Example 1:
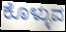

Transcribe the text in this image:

ಕೊಳ್ಳುವ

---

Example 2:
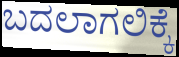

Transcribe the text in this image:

ಬದಲಾಗಲಿಕ್ಕೆ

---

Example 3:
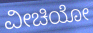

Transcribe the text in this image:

ವೀಚಿಯೋ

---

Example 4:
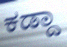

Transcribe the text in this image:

ಕಡ್ದಾ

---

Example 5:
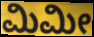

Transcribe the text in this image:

ಮಿಮೀ